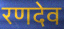
रणदेव